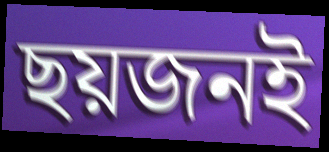
ছয়জনই